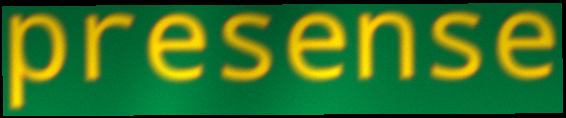
presense